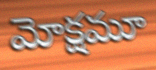
మోక్షమూ